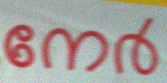
നേർ